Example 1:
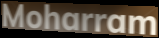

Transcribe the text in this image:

Moharram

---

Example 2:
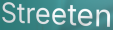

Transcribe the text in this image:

Streeten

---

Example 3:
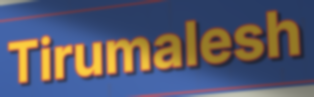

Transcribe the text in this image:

Tirumalesh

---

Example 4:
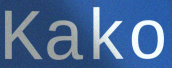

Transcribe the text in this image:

Kako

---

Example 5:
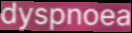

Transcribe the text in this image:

dyspnoea